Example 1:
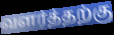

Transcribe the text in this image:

வளர்த்தற்கு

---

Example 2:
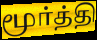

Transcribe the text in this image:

மூர்த்தி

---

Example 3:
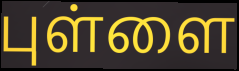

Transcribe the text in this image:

புள்ளை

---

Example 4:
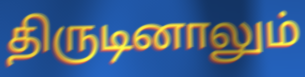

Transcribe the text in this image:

திருடினாலும்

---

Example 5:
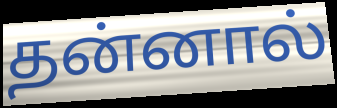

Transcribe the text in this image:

தன்னால்